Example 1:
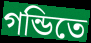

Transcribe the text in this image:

গন্ডিতে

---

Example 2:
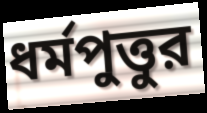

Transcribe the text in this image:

ধর্মপুত্তুর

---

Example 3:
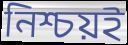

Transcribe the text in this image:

নিশ্চয়ই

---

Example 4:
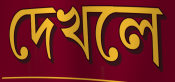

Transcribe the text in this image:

দেখলে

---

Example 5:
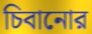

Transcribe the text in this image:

চিবানোর